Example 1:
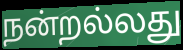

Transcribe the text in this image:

நன்றல்லது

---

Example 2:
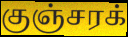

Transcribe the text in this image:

குஞ்சரக்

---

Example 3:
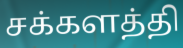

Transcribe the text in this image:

சக்களத்தி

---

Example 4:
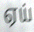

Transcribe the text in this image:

ஏய்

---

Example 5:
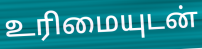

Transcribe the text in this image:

உரிமையுடன்